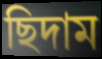
ছিদাম